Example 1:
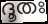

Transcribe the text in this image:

ദൂതഃ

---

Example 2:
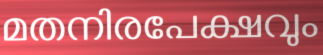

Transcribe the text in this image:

മതനിരപേക്ഷവും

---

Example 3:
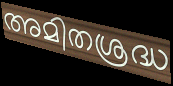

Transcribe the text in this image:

അമിതശ്രദ്ധ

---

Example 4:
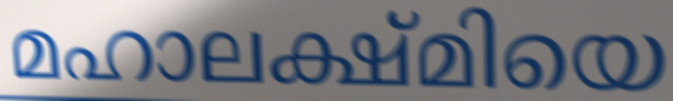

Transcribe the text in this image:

മഹാലക്ഷ്മിയെ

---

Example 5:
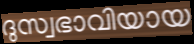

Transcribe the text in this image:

ദുസ്വഭാവിയായ